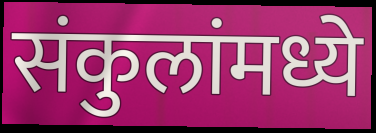
संकुलांमध्ये